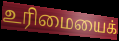
உரிமையைக்